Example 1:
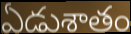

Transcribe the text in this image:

ఏడుశాతం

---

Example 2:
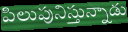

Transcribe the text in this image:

పిలుపునిస్తున్నాడు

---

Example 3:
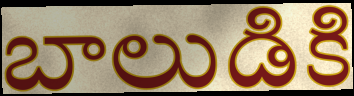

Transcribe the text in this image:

బాలుడికి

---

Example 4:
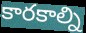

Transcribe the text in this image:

కారకాల్ని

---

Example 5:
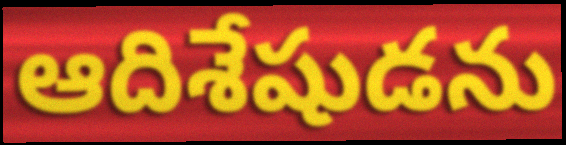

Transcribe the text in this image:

ఆదిశేషుడను